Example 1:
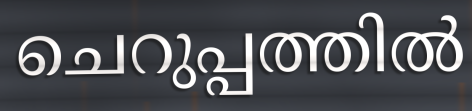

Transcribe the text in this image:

ചെറുപ്പത്തിൽ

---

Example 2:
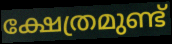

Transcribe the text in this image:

ക്ഷേത്രമുണ്ട്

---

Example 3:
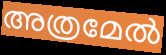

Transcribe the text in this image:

അത്രമേൽ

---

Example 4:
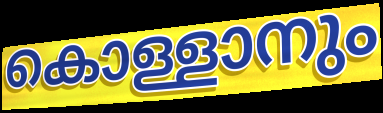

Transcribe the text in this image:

കൊള്ളാനും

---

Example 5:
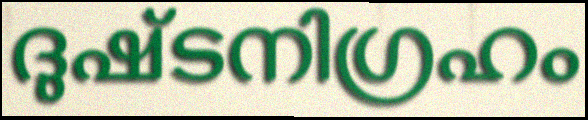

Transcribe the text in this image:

ദുഷ്‌ടനിഗ്രഹം